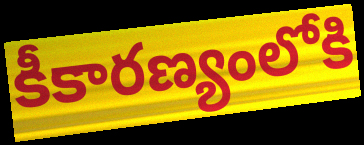
కీకారణ్యంలోకి